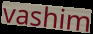
vashim